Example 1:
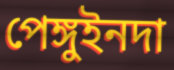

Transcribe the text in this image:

পেঙ্গুইনদা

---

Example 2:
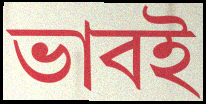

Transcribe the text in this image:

ভাবই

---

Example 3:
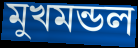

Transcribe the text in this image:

মুখমন্ডল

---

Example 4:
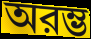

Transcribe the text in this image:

অরম্ভ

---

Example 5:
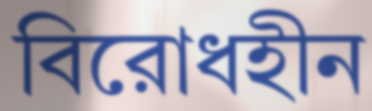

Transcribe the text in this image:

বিরোধহীন